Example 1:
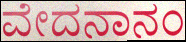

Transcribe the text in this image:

ವೇದನಾನಂ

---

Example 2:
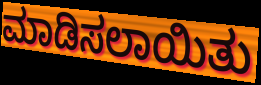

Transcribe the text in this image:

ಮಾಡಿಸಲಾಯಿತು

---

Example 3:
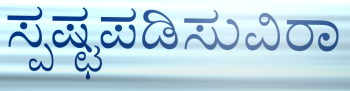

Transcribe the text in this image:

ಸ್ಪಷ್ಟಪಡಿಸುವಿರಾ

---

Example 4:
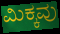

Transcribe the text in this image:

ಮಿಕ್ಕವು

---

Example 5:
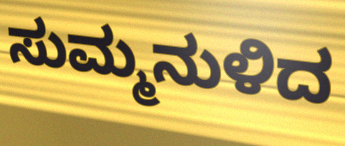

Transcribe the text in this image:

ಸುಮ್ಮನುಳಿದ